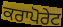
ਕਰਾਪੋਰੇਟ